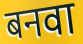
बनवा